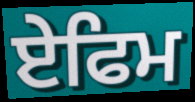
ਏਫਿਮ